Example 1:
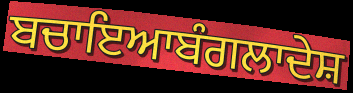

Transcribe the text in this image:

ਬਚਾਇਆਬੰਗਲਾਦੇਸ਼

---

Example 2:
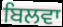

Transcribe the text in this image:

ਬਿਲਵਾ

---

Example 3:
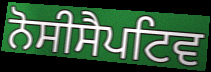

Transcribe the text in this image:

ਨੋਸੀਸੈਪਟਿਵ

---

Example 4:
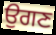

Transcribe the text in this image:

ਉਗਣ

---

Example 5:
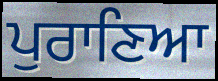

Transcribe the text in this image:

ਪੁਰਾਣਿਆ